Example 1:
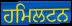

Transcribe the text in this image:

ਹਮਿਲਟਨ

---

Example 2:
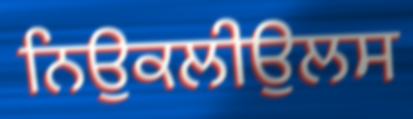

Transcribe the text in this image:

ਨਿਉਕਲੀਉਲਸ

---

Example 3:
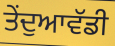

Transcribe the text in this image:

ਤੇਂਦੁਆਵੱਡੀ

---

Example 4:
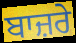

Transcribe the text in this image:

ਬਾਜ਼ਰੇ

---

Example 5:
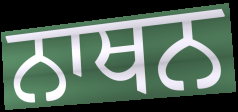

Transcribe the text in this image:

ਨਾਥਨ